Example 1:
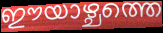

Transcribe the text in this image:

ഈയാഴ്ചത്തെ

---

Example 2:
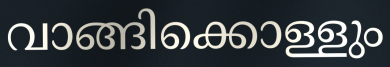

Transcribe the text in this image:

വാങ്ങിക്കൊള്ളും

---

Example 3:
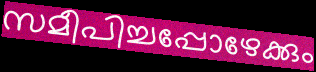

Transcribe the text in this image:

സമീപിച്ചപ്പോഴേക്കും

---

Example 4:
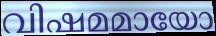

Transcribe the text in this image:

വിഷമമായോ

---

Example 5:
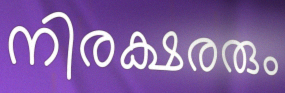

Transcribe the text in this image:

നിരക്ഷരരും